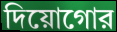
দিয়োগোর